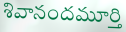
శివానందమూర్తి